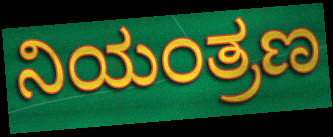
ನಿಯಂತ್ರಣ